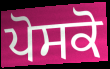
ਪੋਸਕੋ